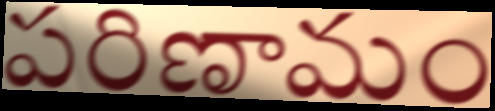
పరిణామం